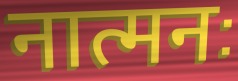
नात्मनः